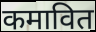
कमावित